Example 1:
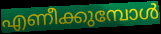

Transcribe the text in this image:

എണീക്കുമ്പോൾ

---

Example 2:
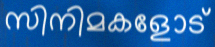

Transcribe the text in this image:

സിനിമകളോട്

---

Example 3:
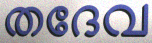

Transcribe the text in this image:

തദേവ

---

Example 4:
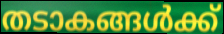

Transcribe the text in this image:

തടാകങ്ങൾക്ക്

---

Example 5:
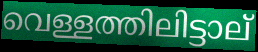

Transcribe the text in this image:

വെള്ളത്തിലിട്ടാല്